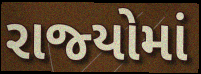
રાજ્‍યોમાં